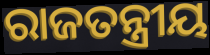
ରାଜତନ୍ତ୍ରୀୟ